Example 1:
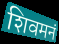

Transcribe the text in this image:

शिवमनं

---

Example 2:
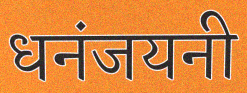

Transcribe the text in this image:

धनंजयनी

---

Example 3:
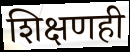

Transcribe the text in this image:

शिक्षणही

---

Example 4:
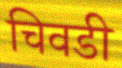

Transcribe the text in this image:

चिवडी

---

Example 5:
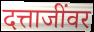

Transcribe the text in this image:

दत्ताजींवर